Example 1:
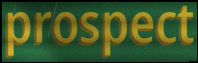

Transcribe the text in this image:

prospect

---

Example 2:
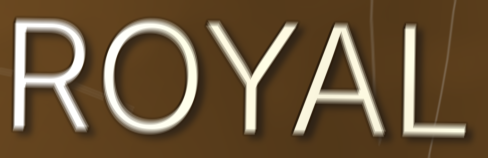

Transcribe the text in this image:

ROYAL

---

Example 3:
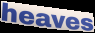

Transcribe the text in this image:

heaves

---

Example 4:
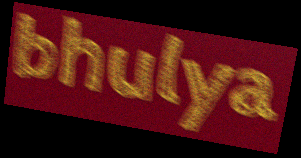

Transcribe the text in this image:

bhulya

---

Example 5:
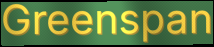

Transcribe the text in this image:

Greenspan